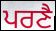
ਪਰਣੈ